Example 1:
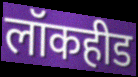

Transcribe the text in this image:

लॉकहीड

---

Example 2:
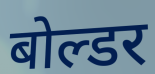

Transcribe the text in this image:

बोल्डर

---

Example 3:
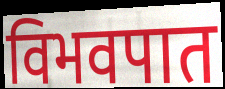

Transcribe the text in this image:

विभवपात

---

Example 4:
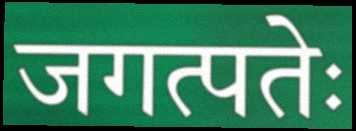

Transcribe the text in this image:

जगत्पतेः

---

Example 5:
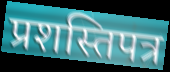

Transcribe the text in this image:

प्रशस्तिपत्र